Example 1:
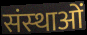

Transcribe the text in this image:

संस्‍थाओं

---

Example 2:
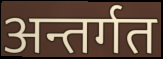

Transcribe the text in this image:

अन्‍तर्गत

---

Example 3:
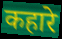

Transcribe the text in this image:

कहारे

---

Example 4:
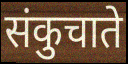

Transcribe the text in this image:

संकुचाते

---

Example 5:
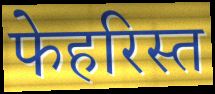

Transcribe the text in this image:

फेहरिस्त